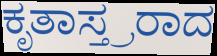
ಕೃತಾಸ್ತ್ರರಾದ